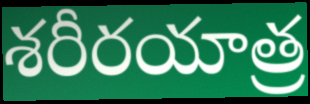
శరీరయాత్ర